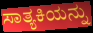
ಸಾತ್ಯಕಿಯನ್ನು